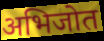
अभिजोत